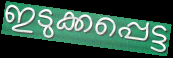
ഇടുക്കപ്പെട്ട